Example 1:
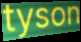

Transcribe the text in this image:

tyson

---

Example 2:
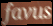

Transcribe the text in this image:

favus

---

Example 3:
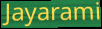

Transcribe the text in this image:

Jayarami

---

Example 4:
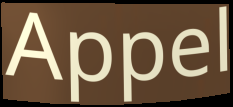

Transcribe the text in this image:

Appel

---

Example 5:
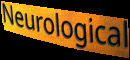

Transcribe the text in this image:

Neurological